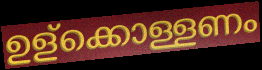
ഉള്ക്കൊള്ളണം